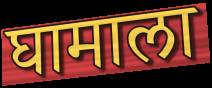
घामाला